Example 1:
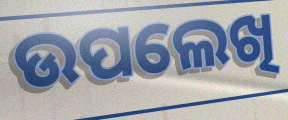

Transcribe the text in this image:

ଉପଲେଖି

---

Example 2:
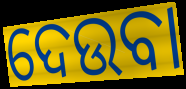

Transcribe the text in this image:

ଦେଉବା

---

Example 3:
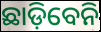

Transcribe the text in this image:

ଛାଡ଼ିବେନି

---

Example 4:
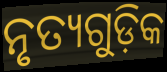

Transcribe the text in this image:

ନୃତ୍ୟଗୁଡ଼ିକ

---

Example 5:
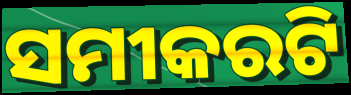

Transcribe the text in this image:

ସମୀକରଟି